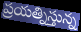
ప్రయత్నిస్తున్న